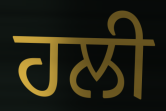
ਹਲੀ